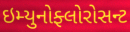
ઇમ્યુનોફ્લોરોસન્ટ